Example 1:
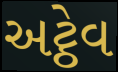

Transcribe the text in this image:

અટ્ઠેવ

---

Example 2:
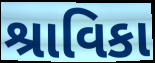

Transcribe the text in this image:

શ્રાવિકા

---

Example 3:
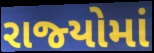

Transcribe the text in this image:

રાજ્‍યોમાં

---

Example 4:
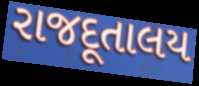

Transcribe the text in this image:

રાજદૂતાલય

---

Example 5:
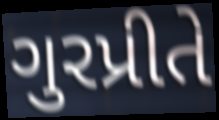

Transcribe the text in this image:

ગુરપ્રીતે